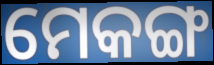
ମେକଙ୍ଗ